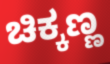
ಚಿಕ್ಕಣ್ಣ